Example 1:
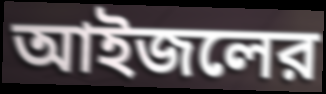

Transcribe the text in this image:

আইজলের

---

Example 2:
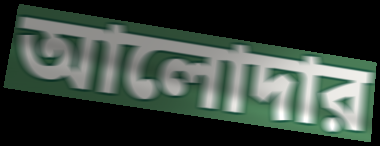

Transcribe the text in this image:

আলোদার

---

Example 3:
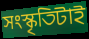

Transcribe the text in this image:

সংস্কৃতিটাই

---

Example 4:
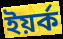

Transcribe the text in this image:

ইয়র্ক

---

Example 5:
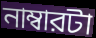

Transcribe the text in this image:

নাম্বারটা